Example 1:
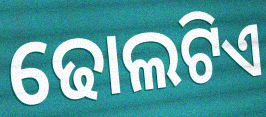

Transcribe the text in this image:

ଢୋଲଟିଏ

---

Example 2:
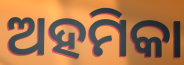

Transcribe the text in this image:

ଅହମିକା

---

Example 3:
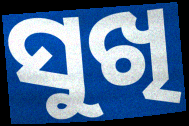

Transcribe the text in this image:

ସୁଖି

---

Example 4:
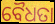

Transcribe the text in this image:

ବୈଧତା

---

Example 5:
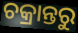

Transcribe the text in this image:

ଚକ୍ରାନ୍ତରୁ